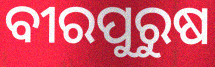
ବୀରପୁରୁଷ